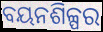
ବୟନଶିଳ୍ପର